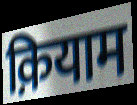
क़ियाम